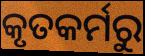
କୃତକର୍ମରୁ